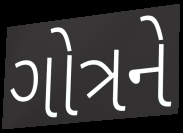
ગોત્રને